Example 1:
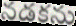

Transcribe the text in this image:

నడకను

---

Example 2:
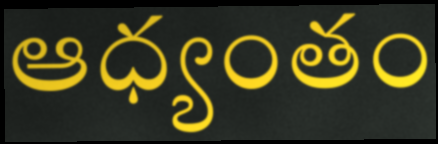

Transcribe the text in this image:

ఆధ్యంతం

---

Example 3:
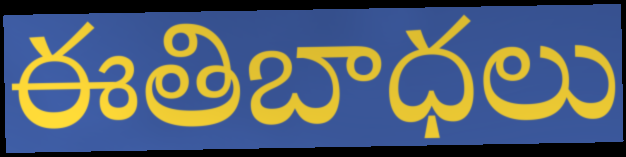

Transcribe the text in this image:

ఈతిబాధలు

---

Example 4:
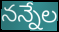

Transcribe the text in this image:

నన్నేల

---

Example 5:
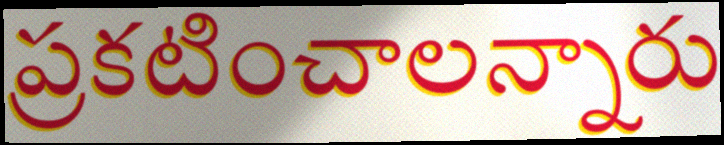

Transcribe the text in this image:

ప్రకటించాలన్నారు